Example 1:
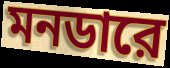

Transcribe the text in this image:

মনডারে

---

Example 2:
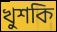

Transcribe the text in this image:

খুশকি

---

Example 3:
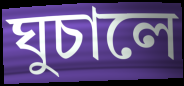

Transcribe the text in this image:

ঘুচালে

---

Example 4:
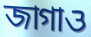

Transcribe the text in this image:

জাগাও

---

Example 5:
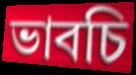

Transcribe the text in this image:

ভাবচি